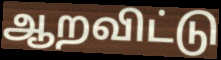
ஆறவிட்டு